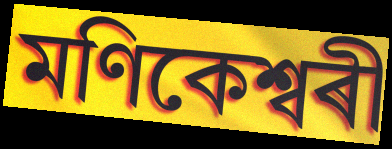
মণিকেশ্বৰী